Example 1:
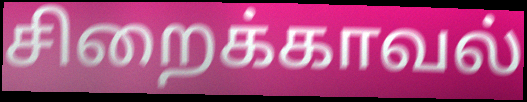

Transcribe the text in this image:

சிறைக்காவல்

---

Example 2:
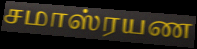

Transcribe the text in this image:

சமாஸ்ரயண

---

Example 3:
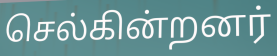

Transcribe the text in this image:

செல்கின்றனர்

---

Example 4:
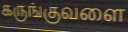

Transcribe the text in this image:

கருங்குவளை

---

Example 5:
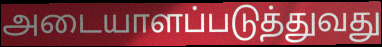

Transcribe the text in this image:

அடையாளப்படுத்துவது